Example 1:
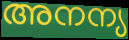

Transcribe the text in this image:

അനന്യ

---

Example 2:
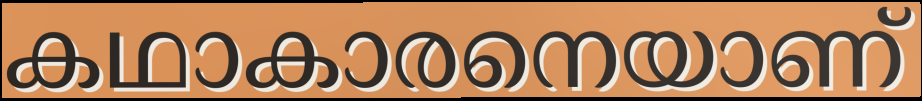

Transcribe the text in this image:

കഥാകാരനെയാണ്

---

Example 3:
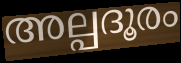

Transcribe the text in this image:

അല്പദൂരം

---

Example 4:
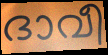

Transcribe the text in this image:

ദാവീ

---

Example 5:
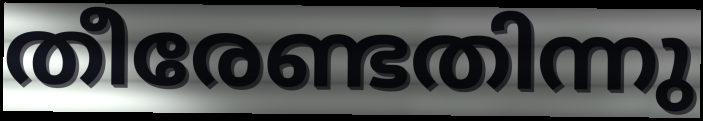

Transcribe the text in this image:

തീരേണ്ടതിന്നു